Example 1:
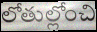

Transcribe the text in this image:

లోతుల్లోంచి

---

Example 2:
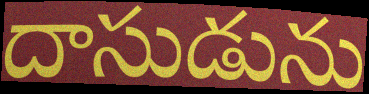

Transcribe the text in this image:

దాసుడును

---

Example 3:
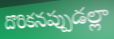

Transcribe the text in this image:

దొరికనప్పుడల్లా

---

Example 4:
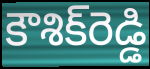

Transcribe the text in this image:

కౌశిక్‌రెడ్డి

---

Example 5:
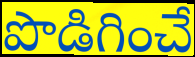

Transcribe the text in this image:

పొడిగించే